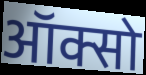
ऑक्सो